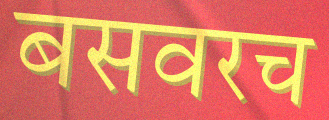
बसवरच